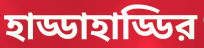
হাড্ডাহাড্ডির